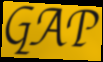
GAP